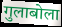
गुलाबोला